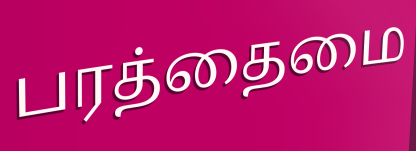
பரத்தைமை